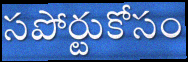
సపోర్టుకోసం